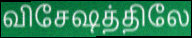
விசேஷத்திலே